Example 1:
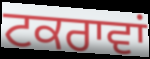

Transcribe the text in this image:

ਟਕਰਾਵਾਂ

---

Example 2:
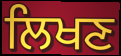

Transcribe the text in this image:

ਲਿਖਣ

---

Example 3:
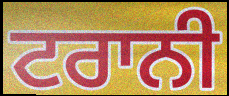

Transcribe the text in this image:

ਟਰਾਨੀ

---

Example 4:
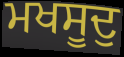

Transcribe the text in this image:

ਮਖਸੂਦੁ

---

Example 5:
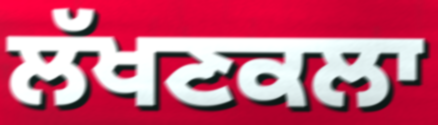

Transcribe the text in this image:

ਲੱਖਣਕਲਾ